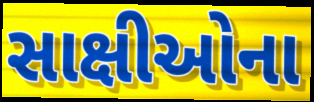
સાક્ષીઓના